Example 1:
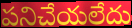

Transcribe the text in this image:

పనిచేయలేదు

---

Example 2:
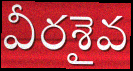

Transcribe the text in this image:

వీరశైవ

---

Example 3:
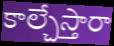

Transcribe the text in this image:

కాల్చేస్తారా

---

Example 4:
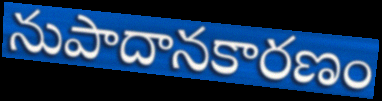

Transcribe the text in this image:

నుపాదానకారణం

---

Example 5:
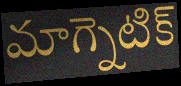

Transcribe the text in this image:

మాగ్నెటిక్